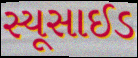
સ્યૂસાઈડ